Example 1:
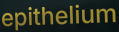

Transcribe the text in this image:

epithelium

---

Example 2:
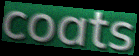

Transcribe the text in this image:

coats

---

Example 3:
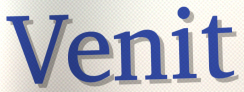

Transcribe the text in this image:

Venit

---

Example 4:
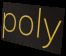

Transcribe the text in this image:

poly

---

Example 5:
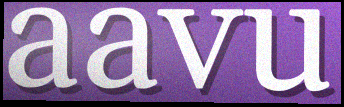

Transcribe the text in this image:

aavu